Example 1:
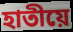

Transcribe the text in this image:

হাতীয়ে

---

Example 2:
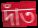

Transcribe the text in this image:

দাঁত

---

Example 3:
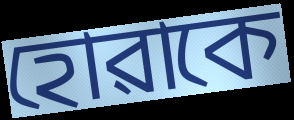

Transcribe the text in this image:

হোৱাকে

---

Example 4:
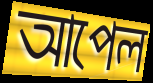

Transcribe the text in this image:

আপেল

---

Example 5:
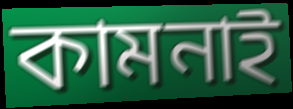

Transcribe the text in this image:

কামনাই